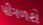
પીગળશે